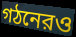
গঠনেরও